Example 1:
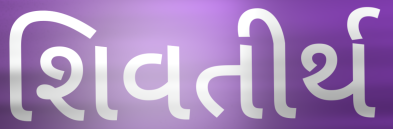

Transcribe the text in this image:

શિવતીર્થ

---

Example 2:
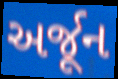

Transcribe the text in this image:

અર્જૂન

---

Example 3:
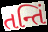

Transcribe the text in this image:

તન્તિં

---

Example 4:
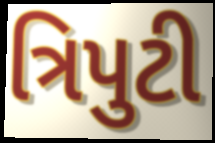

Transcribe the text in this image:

ત્રિપુટી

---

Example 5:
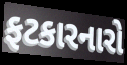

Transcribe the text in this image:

ફટકારનારો